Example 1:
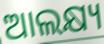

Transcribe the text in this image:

ଆଲକ୍ଷ୍ୟ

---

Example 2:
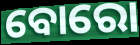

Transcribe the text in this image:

ବୋରୋ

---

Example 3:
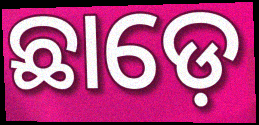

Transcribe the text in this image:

ଛାଡ଼େ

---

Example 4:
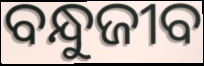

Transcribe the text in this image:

ବନ୍ଧୁଜୀବ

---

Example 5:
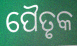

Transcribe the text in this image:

ପୈତୃକ